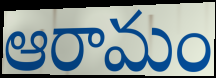
ఆరామం